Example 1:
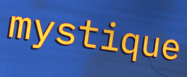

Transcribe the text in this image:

mystique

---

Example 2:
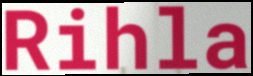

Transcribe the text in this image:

Rihla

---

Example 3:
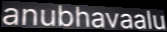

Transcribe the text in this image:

anubhavaalu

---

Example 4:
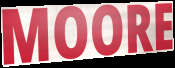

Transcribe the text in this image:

MOORE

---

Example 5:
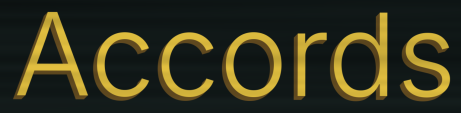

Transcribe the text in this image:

Accords